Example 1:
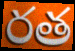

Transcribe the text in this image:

రత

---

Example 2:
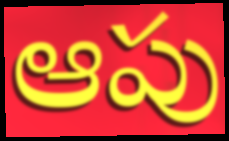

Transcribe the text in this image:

ఆపు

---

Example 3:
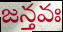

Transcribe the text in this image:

జన్తవః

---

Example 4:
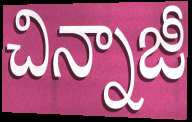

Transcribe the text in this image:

చిన్నాజీ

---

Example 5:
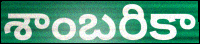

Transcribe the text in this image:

శాంబరికా